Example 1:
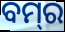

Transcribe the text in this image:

ବମ୍‌ର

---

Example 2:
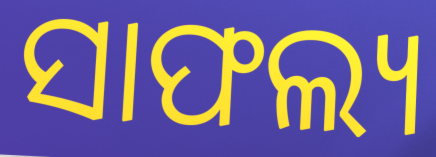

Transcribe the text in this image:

ସାଫଲ୍ଯ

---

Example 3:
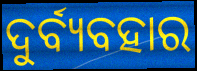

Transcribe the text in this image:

ଦୁର୍ବ୍ୟବହାର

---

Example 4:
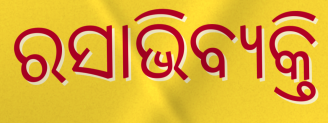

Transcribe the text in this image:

ରସାଭିବ୍ୟକ୍ତି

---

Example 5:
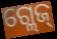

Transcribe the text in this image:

ଗ୍ଲେଜ୍